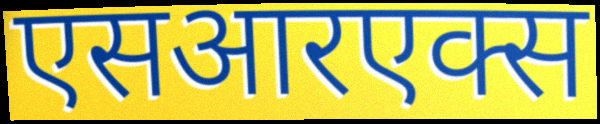
एसआरएक्स